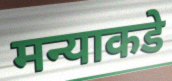
मन्याकडे